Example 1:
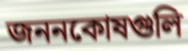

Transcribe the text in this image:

জননকোষগুলি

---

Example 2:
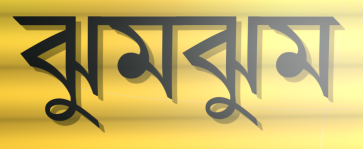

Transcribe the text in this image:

ঝুমঝুম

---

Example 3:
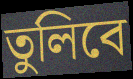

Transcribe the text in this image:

তুলিবে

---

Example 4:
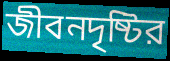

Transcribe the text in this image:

জীবনদৃষ্টির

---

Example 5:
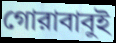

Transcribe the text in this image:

গোরাবাবুই